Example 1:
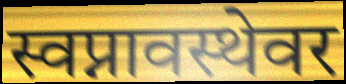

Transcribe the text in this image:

स्वप्नावस्थेवर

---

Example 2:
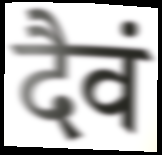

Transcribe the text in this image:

दैवं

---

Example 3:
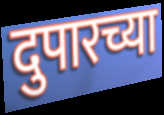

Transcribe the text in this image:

दुपारच्या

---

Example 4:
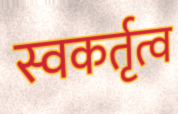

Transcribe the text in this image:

स्वकर्तृत्व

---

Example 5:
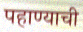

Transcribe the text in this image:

पहाण्याची